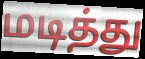
மடித்து